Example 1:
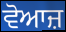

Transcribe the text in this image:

ਵੋਆਜ਼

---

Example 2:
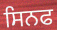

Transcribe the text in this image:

ਸਿਨਫ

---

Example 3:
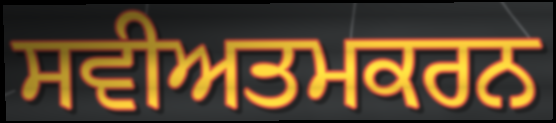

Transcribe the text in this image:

ਸਵੀਅਤਮਕਰਨ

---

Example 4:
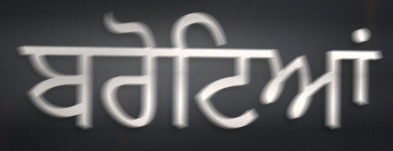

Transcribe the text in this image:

ਬਰੋਟਿਆਂ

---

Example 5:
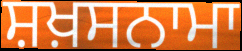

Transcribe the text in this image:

ਸ਼ਖ਼ਸਨਾਮਾ